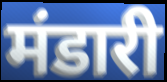
मंडारी